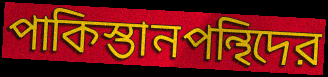
পাকিস্তানপন্থিদের